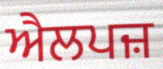
ਐਲਪਜ਼